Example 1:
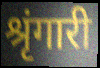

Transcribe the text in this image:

श्रृंगारी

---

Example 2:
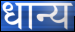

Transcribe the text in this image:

धान्य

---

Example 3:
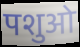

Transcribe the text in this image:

पशुओ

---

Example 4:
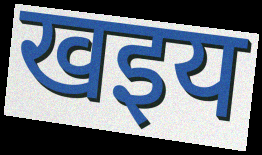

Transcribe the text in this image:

खइय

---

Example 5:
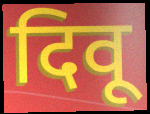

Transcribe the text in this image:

दिवू